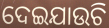
ଦେଇଯାଉଚି